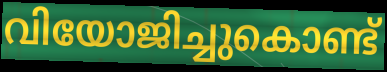
വിയോജിച്ചുകൊണ്ട്